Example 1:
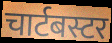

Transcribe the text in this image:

चार्टबस्टर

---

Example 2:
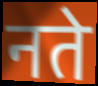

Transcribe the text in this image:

नते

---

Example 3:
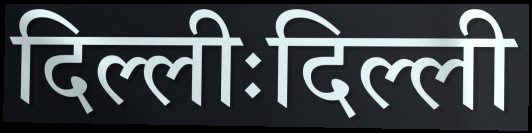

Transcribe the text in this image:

दिल्लीःदिल्ली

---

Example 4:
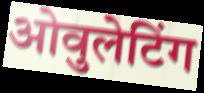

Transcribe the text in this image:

ओवुलेटिंग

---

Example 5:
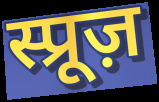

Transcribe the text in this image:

स्प्रूज़